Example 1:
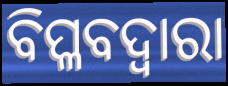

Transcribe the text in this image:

ବିପ୍ଳବଦ୍ୱାରା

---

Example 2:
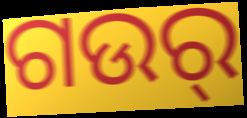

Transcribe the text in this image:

ଗଉର୍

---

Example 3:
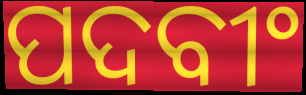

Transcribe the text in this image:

ପଦବୀଂ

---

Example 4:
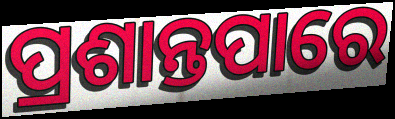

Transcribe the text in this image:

ପ୍ରଶାନ୍ତପାରେ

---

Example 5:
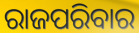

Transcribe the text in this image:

ରାଜପରିବାର